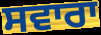
ਸਵਾਰਾ